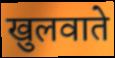
खुलवाते